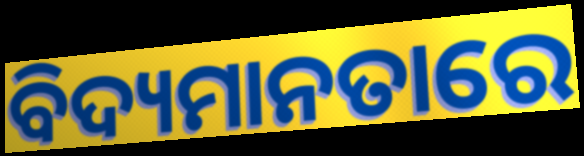
ବିଦ୍ୟମାନତାରେ